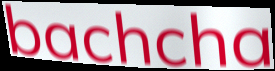
bachcha